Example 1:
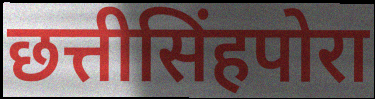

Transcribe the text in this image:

छत्तीसिंहपोरा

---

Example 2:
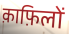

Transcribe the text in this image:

क़ाफ़िलों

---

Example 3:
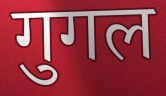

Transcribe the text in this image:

गुगल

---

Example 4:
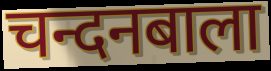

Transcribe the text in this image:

चन्दनबाला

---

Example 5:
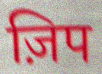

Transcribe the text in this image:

ज़िप